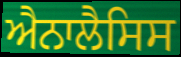
ਐਨਾਲੈਸਿਸ